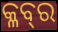
କ୍ଳବ୍‍ର